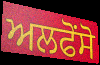
ਅਲਫੋਂਸੋ